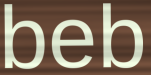
beb